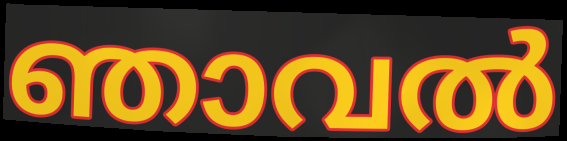
ഞാവൽ